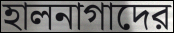
হালনাগাদের